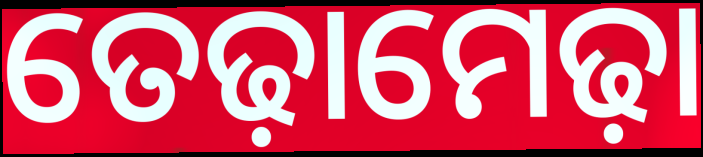
ତେଢ଼ାମେଢ଼ା